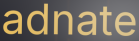
adnate